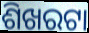
ଶିଖରଟା